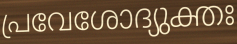
പ്രവേശോദ്യുക്തഃ